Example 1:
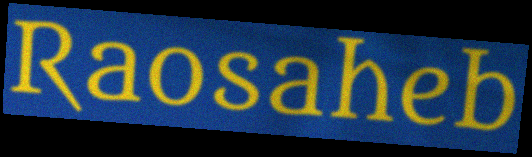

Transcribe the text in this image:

Raosaheb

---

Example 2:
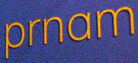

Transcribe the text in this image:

prnam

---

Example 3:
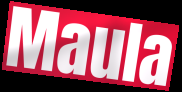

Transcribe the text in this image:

Maula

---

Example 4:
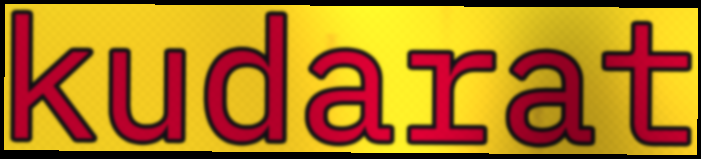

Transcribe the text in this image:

kudarat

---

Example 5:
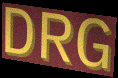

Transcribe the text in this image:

DRG